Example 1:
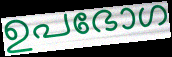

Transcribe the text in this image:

ഉപഭോഗ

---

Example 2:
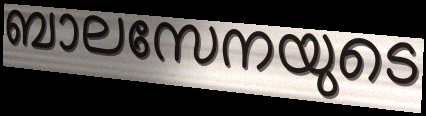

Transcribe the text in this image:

ബാലസേനയുടെ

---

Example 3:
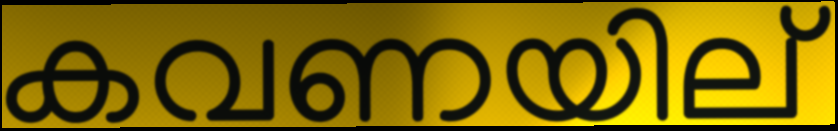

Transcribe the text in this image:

കവണയില്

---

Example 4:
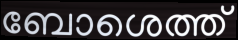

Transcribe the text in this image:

ബോശെത്ത്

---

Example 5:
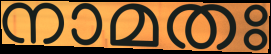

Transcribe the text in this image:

നാമതഃ